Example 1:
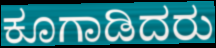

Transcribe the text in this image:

ಕೂಗಾಡಿದರು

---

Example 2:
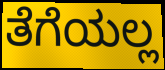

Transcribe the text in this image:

ತೆಗೆಯಲ್ಲ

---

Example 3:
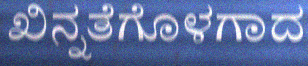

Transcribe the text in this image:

ಖಿನ್ನತೆಗೊಳಗಾದ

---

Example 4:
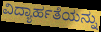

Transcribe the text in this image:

ವಿದ್ಯಾರ್ಹತೆಯನ್ನು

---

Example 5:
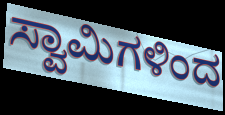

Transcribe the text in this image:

ಸ್ವಾಮಿಗಳಿಂದ